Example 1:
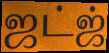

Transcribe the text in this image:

ஜட்ஜ்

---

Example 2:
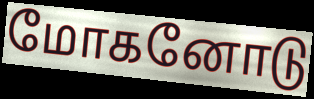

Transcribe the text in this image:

மோகனோடு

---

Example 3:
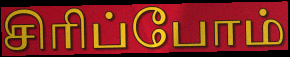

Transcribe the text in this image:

சிரிப்போம்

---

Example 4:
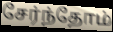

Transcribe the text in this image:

சேர்ந்தோம்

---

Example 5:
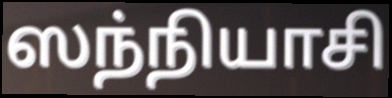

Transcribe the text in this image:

ஸந்நியாசி